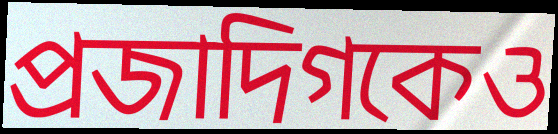
প্রজাদিগকেও